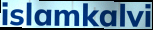
islamkalvi